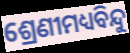
ଶ୍ରେଣୀମଧ୍ୟବିନ୍ଦୁ